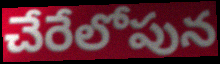
చేరేలోపున